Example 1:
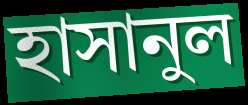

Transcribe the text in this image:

হাসানুল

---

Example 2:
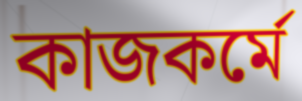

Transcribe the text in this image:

কাজকর্মে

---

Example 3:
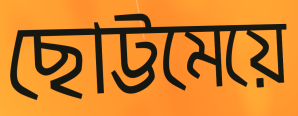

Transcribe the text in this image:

ছোট্টমেয়ে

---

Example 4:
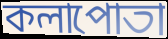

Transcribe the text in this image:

কলাপোতা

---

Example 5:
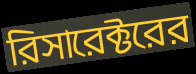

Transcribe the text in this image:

রিসারেক্টরের